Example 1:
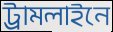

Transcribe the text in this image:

ট্রামলাইনে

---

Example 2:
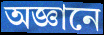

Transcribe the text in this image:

অজ্ঞানে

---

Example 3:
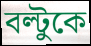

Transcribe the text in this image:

বল্টুকে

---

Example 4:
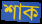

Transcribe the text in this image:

শাক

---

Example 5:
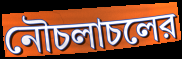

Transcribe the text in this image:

নৌচলাচলের